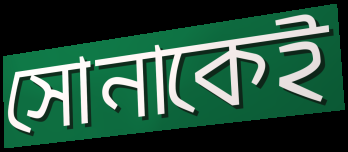
সোনাকেই